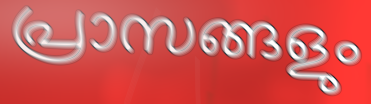
പ്രാസങ്ങളും